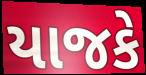
યાજકે